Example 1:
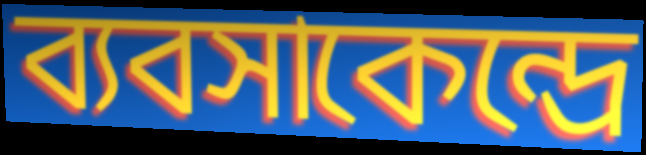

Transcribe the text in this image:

ব্যবসাকেন্দ্রে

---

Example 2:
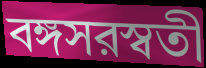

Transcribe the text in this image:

বঙ্গসরস্বতী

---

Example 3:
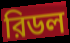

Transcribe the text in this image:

রিডল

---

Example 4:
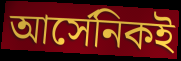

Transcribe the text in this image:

আর্সেনিকই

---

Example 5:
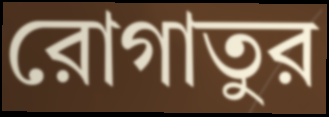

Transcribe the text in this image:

রোগাতুর